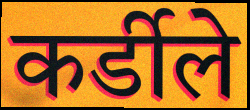
कर्डीले